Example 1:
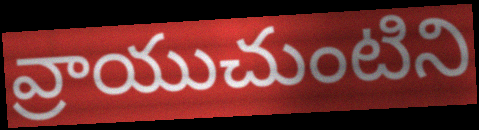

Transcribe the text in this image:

వ్రాయుచుంటిని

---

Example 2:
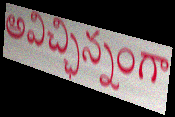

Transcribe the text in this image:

అవిచ్ఛిన్నంగా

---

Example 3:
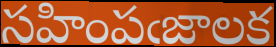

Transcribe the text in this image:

సహింపఁజాలక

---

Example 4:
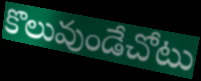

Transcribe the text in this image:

కొలువుండేచోటు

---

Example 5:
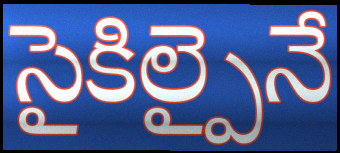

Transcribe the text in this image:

సైకిల్పైనే